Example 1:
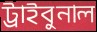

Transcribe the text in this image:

ট্রাইবুনাল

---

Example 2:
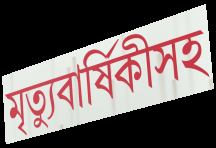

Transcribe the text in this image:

মৃত্যুবার্ষিকীসহ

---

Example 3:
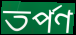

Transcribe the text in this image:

তর্পণ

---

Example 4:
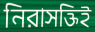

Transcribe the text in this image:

নিরাসক্তিই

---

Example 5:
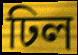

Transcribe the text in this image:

ঢিল